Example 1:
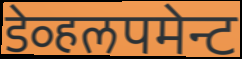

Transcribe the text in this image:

डेव्हलपमेन्ट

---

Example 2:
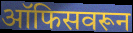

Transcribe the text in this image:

ऑफिसवरून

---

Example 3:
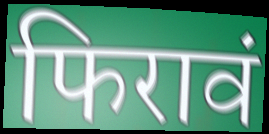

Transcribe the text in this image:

फिरावं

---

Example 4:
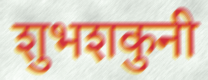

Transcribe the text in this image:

शुभशकुनी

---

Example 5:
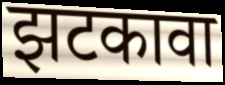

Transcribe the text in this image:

झटकावा